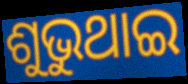
ଶୁଭୁଥାଇ